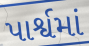
પાર્શ્વમાં